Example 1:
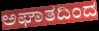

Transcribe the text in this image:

ಅಘಾತದಿಂದ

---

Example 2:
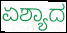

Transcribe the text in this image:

ಏಶ್ಯಾದ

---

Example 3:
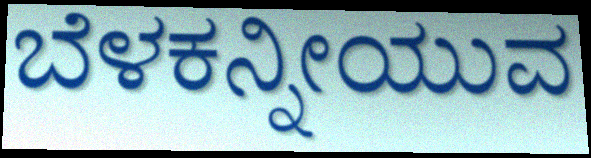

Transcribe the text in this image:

ಬೆಳಕನ್ನೀಯುವ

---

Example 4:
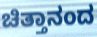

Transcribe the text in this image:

ಚಿತ್ತಾನಂದ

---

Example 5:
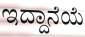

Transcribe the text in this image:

ಇದ್ದಾನೆಯೆ